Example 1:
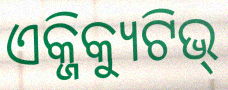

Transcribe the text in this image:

ଏକ୍ଜିକ୍ୟୁଟିଭ୍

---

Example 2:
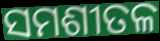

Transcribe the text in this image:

ସମଶୀତଳ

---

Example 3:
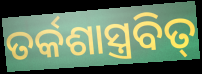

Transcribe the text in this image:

ତର୍କଶାସ୍ତ୍ରବିତ୍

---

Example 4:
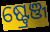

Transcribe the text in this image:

ଷ୍ଟ୍ରେଞ୍ଜ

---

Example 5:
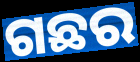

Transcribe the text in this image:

ଗଛର